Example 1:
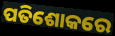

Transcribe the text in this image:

ପତିଶୋକରେ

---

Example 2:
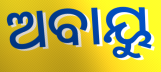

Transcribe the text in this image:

ଅବାୟୁ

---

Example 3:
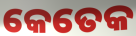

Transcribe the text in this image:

କେତେକ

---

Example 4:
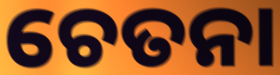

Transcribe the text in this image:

ଚେତନା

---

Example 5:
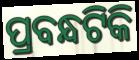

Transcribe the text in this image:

ପ୍ରବନ୍ଧଟିକି